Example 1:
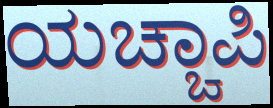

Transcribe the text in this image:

ಯಚ್ಚಾಪಿ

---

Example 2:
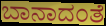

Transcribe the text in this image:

ಬಾನಾದಂತೆ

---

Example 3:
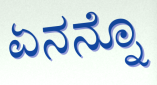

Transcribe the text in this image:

ಏನನ್ನೊ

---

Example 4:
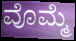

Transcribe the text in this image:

ವೊಮ್ಮೆ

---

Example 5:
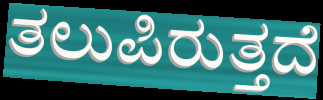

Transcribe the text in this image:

ತಲುಪಿರುತ್ತದೆ